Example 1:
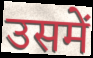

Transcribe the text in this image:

उसमें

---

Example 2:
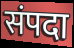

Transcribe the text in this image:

संपदा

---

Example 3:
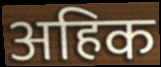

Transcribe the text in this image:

अहिक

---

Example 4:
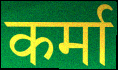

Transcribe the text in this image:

कर्मा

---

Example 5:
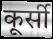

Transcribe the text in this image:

कूर्सी